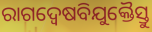
ରାଗଦ୍ୱେଷବିଯୁକ୍ତୈସ୍ତୁ